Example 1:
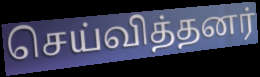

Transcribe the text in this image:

செய்வித்தனர்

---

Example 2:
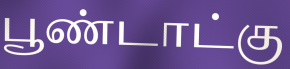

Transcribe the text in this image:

பூண்டாட்கு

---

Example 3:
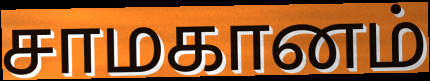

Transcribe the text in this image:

சாமகானம்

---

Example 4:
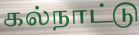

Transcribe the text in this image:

கல்நாட்டு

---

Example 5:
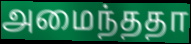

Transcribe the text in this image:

அமைந்ததா